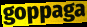
goppaga